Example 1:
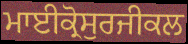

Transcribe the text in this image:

ਮਾਈਕ੍ਰੋਸੁਰਜੀਕਲ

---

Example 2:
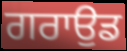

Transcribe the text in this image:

ਗਰਾਉਡ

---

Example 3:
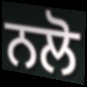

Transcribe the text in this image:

ਨਲੋ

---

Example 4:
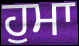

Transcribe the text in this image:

ਹੁਮਾ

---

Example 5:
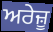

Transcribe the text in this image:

ਅਰੇਜ਼ੂ